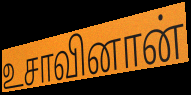
உசாவினான்